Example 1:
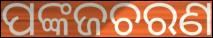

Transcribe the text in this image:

ପଙ୍କଜଚରଣ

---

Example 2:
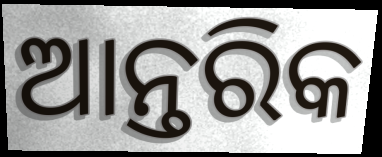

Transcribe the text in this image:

ଆନ୍ତରିକ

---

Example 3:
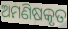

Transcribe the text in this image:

ଅମଣିଷକୃତ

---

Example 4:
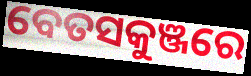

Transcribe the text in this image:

ବେତସକୁଞ୍ଜରେ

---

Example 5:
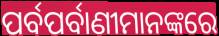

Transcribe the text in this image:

ପର୍ବପର୍ବାଣୀମାନଙ୍କରେ